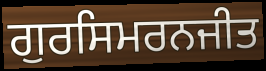
ਗੁਰਸਿਮਰਨਜੀਤ